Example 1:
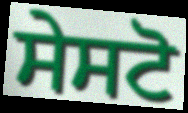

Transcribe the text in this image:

ਸੇਸਟੋ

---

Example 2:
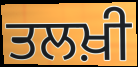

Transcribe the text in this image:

ਤਲਖ਼ੀ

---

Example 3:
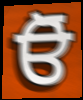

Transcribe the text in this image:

ਓੋ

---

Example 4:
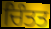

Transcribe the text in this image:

ਚਿੰਤਤ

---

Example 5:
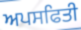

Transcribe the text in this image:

ਅਪਸਫਿਤੀ